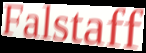
Falstaff